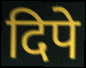
दिपे